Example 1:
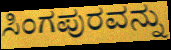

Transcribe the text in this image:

ಸಿಂಗಪುರವನ್ನು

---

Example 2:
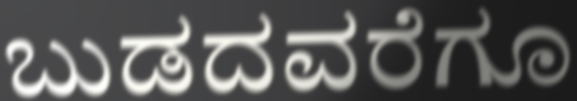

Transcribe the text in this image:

ಬುಡದವರೆಗೂ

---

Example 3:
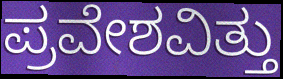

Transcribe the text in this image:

ಪ್ರವೇಶವಿತ್ತು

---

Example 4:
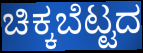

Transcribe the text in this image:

ಚಿಕ್ಕಬೆಟ್ಟದ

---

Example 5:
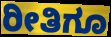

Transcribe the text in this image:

ರೀತಿಗೂ